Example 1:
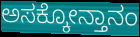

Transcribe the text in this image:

ಅಸಕ್ಕೋನ್ತಾನಂ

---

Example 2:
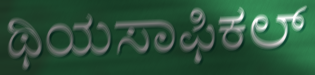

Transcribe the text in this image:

ಥಿಯಸಾಫಿಕಲ್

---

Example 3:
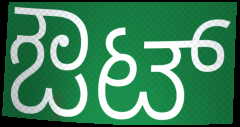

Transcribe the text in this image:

ಔಟ್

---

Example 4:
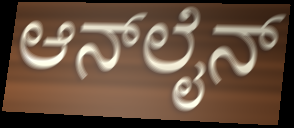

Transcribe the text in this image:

ಆನ್‍ಲೈನ್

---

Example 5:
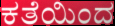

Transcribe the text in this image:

ಕತೆಯಿಂದ